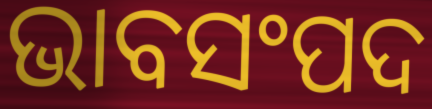
ଭାବସଂପଦ